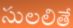
సులలితే